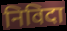
निविदा